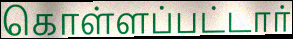
கொள்ளப்பட்டார்